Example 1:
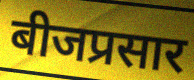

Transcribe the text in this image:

बीजप्रसार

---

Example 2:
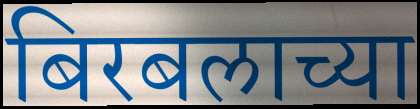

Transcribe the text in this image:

बिरबलाच्या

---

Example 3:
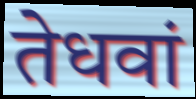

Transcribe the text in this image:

तेधवां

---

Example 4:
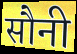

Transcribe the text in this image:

सौनी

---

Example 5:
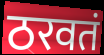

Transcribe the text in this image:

ठरवतं